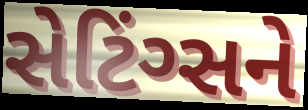
સેટિંગ્સને